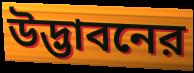
উদ্ভাবনের